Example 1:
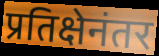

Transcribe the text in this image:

प्रतिक्षेनंतर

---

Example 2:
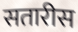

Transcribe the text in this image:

सतारीस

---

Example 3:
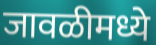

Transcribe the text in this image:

जावळीमध्ये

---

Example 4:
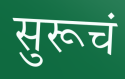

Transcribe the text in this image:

सुरूचं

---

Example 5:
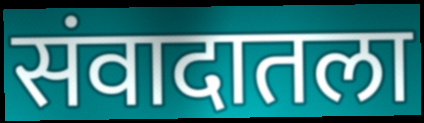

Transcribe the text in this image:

संवादातला